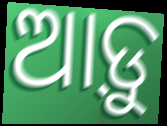
ଆଡ଼ୁ